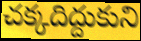
చక్కదిద్దుకుని